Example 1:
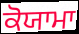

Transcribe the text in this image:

ਕੋਯਾਮਾ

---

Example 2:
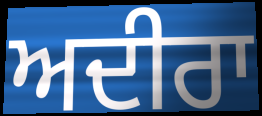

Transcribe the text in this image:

ਅਦੀਰਾ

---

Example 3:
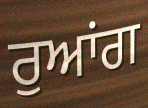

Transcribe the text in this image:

ਰੁਆਂਗ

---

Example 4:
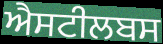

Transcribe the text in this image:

ਐਸਟੀਲਬਸ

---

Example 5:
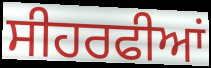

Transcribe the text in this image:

ਸੀਹਰਫੀਆਂ